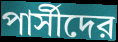
পার্সীদের